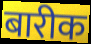
बारीक